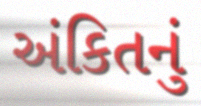
અંકિતનું